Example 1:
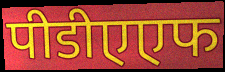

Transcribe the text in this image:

पीडीएएफ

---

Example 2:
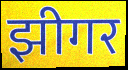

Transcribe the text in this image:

झीगर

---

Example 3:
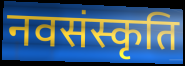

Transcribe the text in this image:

नवसंस्कृति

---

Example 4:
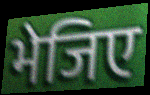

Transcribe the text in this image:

भेजिए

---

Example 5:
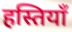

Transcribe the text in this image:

हस्तियॉं